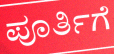
ಪೂರ್ತಿಗೆ